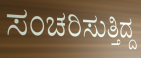
ಸಂಚರಿಸುತ್ತಿದ್ದ